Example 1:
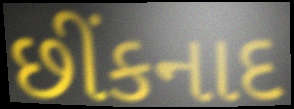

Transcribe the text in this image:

છીંકનાદ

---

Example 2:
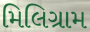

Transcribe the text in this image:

મિલિગ્રામ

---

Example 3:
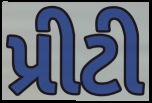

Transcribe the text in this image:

પ્રીટી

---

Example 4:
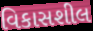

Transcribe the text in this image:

વિકાસશીલ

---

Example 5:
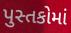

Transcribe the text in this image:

પુસ્તકોમાં